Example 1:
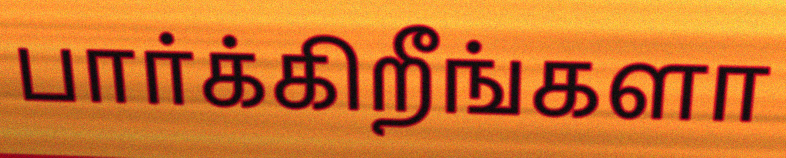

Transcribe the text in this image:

பார்க்கிறீங்களா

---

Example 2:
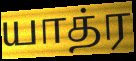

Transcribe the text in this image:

யாத்ர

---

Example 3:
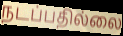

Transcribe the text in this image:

நடப்பதில்லை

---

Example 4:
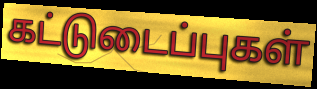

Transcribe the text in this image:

கட்டுடைப்புகள்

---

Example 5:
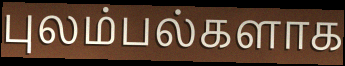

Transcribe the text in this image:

புலம்பல்களாக